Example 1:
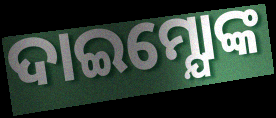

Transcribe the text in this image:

ଦାଇମ୍ଯୋଙ୍କ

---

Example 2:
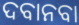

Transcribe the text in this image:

ଦବାନବା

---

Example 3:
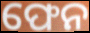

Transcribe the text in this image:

ଫେନ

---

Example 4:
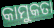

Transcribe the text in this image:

କାମୁକତା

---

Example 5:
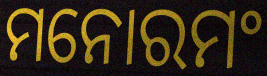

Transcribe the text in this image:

ମନୋରମଂ